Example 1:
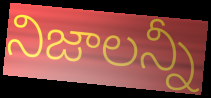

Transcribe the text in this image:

నిజాలన్నీ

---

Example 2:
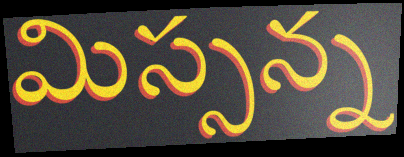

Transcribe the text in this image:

మిస్సన్న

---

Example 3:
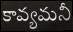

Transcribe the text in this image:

కావ్యమనీ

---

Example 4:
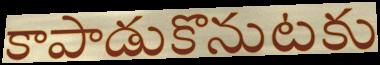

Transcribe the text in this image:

కాపాడుకొనుటకు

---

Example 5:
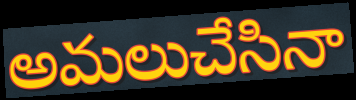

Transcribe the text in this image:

అమలుచేసినా